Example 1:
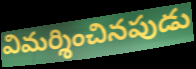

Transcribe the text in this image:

విమర్శించినపుడు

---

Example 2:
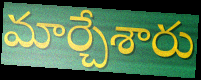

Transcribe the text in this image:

మార్చేశారు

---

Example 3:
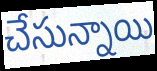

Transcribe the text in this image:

చేసున్నాయి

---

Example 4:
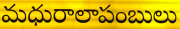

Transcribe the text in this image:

మధురాలాపంబులు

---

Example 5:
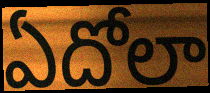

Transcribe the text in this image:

ఏదోలా